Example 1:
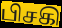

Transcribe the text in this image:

பிசகி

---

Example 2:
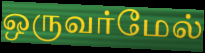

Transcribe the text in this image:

ஒருவர்மேல்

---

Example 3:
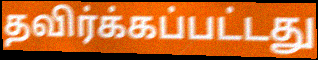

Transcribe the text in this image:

தவிர்க்கப்பட்டது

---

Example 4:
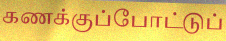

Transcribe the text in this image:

கணக்குப்போட்டுப்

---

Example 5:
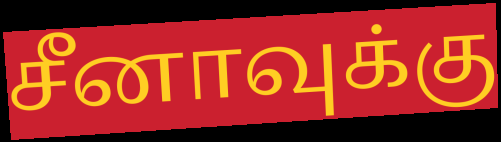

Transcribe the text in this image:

சீனாவுக்கு